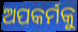
ଅପକର୍ମକୁ